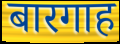
बारगाह